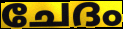
ചേദം